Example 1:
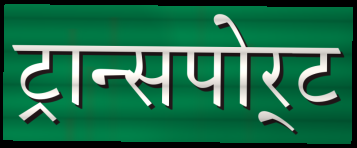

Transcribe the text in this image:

ट्रान्सपोर्ट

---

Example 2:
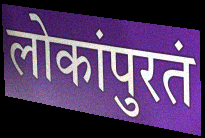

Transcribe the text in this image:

लोकांपुरतं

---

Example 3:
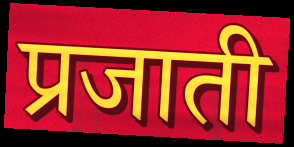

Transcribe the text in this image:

प्रजाती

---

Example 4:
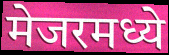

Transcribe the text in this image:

मेजरमध्ये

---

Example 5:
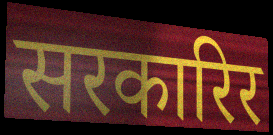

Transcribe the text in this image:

सरकारिर